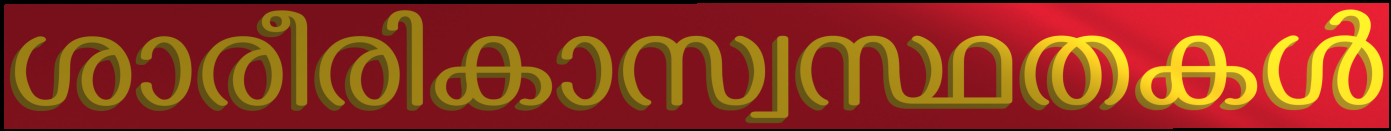
ശാരീരികാസ്വസ്ഥതകൾ